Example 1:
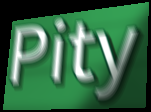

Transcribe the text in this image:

Pity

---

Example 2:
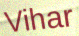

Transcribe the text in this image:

Vihar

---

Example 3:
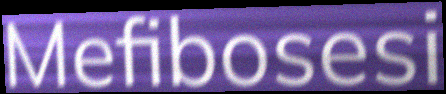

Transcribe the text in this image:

Mefibosesi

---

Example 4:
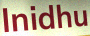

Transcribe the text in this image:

Inidhu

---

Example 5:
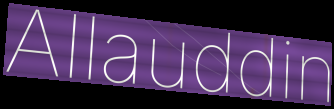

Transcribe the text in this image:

Allauddin